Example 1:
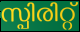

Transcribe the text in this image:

സ്പിരിറ്റ്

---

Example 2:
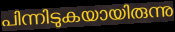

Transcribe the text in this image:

പിന്നിടുകയായിരുന്നു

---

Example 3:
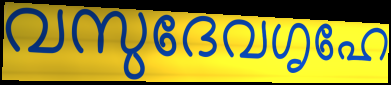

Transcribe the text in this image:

വസുദേവഗൃഹേ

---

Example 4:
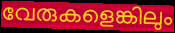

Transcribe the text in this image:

വേരുകളെങ്കിലും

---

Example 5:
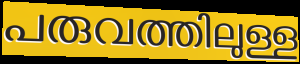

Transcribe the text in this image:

പരുവത്തിലുള്ള